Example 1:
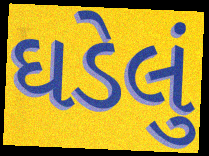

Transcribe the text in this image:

ઘડેલું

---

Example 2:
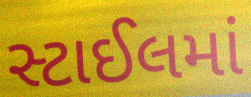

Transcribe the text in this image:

સ્ટાઈલમાં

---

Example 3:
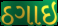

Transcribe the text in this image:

ઠગાઇ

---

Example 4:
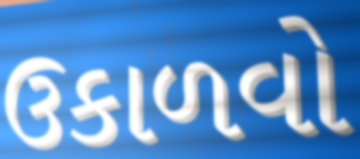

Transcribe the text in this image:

ઉકાળવો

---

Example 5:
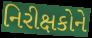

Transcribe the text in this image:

નિરીક્ષકોને